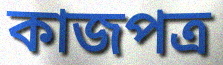
কাজপত্র